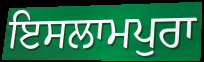
ਇਸਲਾਮਪੁਰਾ